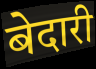
बेदारी